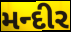
મન્દીર